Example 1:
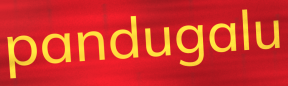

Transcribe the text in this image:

pandugalu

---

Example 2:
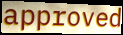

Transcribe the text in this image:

approved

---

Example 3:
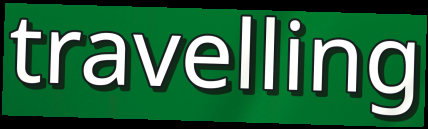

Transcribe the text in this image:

travelling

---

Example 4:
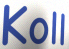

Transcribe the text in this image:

Koll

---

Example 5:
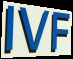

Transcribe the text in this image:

IVF